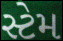
સ્ટેમ